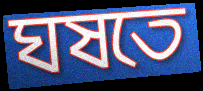
ঘষতে